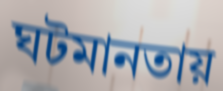
ঘটমানতায়